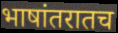
भाषांतरातच